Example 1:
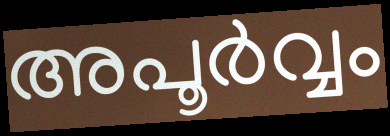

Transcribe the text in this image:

അപൂർവ്വം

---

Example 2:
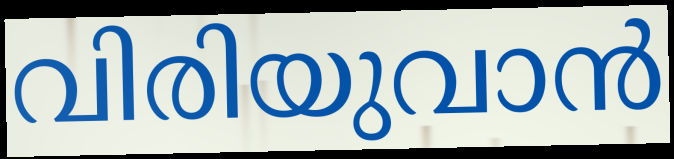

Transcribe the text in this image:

വിരിയുവാൻ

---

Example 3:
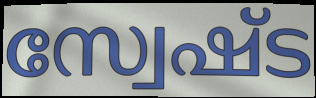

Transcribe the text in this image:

സ്വേഷ്ട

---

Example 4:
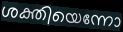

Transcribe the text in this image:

ശക്തിയെന്നോ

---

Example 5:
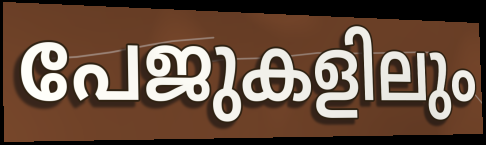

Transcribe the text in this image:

പേജുകളിലും